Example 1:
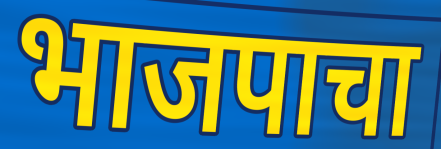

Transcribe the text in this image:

भाजपाचा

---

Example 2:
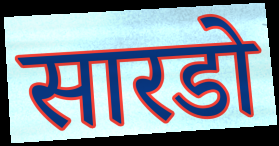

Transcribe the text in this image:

सारडो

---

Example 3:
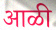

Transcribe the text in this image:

आळी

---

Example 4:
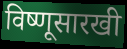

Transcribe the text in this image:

विष्णूसारखी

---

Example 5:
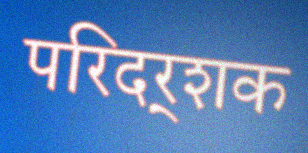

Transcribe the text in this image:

परिदर्शक